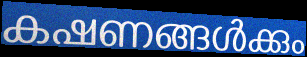
കഷണങ്ങൾക്കും